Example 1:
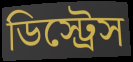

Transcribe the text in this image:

ডিস্ট্রেস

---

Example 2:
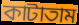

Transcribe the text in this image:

কাটাতাম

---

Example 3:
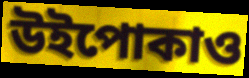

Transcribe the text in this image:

উইপোকাও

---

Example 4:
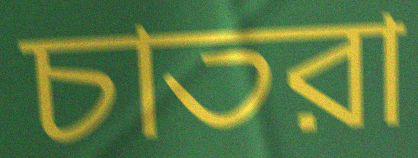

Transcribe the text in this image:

চাতরা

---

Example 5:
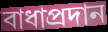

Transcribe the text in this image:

বাধাপ্রদান